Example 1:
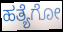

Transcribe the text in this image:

ಹತ್ಯೆಗೋ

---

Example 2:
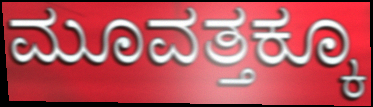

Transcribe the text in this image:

ಮೂವತ್ತಕ್ಕೂ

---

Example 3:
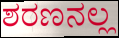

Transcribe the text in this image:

ಶರಣನಲ್ಲ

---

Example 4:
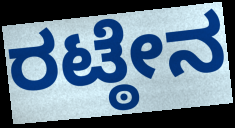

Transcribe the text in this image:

ರಟ್ಠೇನ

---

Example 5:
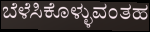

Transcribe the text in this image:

ಬೆಳೆಸಿಕೊಳ್ಳುವಂತಹ